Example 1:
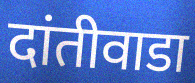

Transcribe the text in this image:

दांतीवाडा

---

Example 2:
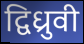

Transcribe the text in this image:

द्विध्रुवी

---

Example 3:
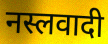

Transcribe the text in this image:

नस्लवादी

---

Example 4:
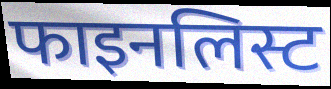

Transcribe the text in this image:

फाइनलिस्ट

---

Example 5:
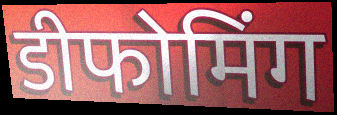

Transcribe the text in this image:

डीफोमिंग